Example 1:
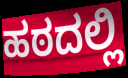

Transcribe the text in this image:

ಹಠದಲ್ಲಿ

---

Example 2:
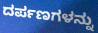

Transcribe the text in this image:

ದರ್ಪಣಗಳನ್ನು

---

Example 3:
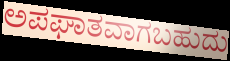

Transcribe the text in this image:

ಅಪಘಾತವಾಗಬಹುದು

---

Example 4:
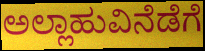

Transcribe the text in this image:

ಅಲ್ಲಾಹುವಿನೆಡೆಗೆ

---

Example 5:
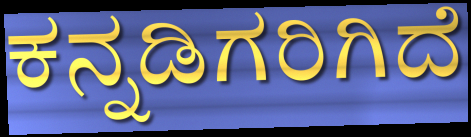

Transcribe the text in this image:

ಕನ್ನಡಿಗರಿಗಿದೆ